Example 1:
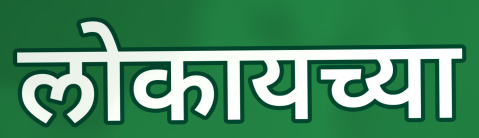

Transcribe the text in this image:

लोकायच्या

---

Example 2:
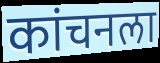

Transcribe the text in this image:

कांचनला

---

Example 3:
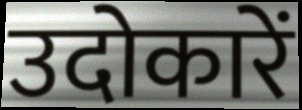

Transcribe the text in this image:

उदोकारें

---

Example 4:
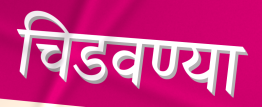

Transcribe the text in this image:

चिडवण्या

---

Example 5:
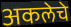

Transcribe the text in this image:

अकलेचे